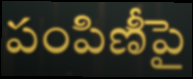
పంపిణీపై